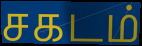
சகடம்